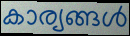
കാര്യങ്ങൾ